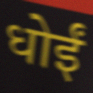
धोईं